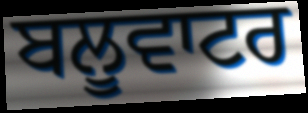
ਬਲੂਵਾਟਰ